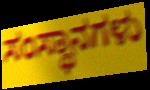
ಸಂಸ್ಥಾನಗಳು